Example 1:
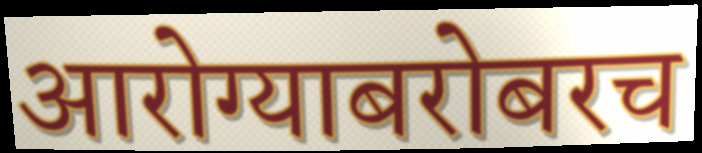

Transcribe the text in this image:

आरोग्याबरोबरच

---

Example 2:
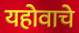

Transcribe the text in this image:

यहोवाचे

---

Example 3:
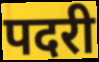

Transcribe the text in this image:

पदरी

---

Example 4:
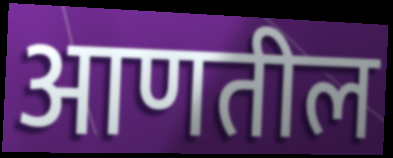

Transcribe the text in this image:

आणतील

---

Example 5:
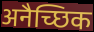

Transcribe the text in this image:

अनैच्छिक